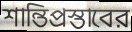
শান্তিপ্রস্তাবের